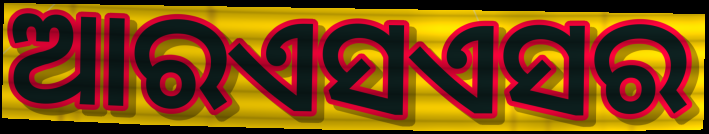
ଆରଏସଏସର